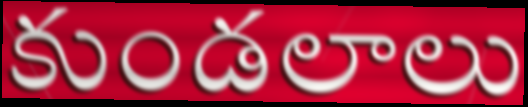
కుండలాలు